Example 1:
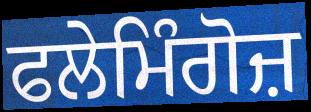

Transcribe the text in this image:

ਫਲੇਮਿੰਗੋਜ਼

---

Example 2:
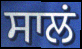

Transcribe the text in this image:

ਸਾਲਂ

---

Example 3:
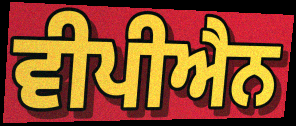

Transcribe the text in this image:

ਵੀਪੀਐਨ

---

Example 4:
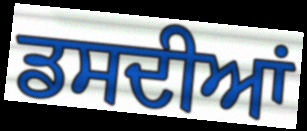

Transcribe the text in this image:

ਡਸਦੀਆਂ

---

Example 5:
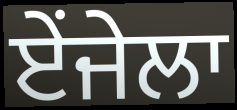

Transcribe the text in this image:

ਏਂਜੇਲਾ